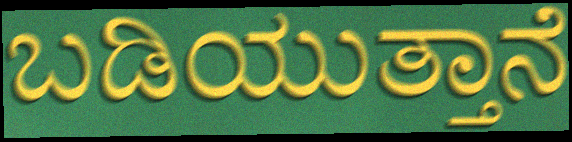
ಬಡಿಯುತ್ತಾನೆ